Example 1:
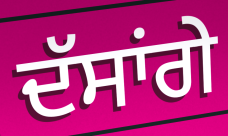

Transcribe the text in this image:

ਦੱਸਾਂਗੇ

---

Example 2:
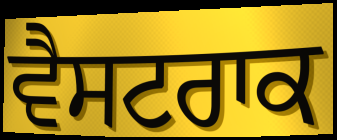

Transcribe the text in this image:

ਵੈਸਟਰਾਕ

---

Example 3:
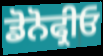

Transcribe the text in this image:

ਡੋਨੋਫ੍ਰੀਓ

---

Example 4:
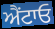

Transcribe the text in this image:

ਐਂਟਾਓ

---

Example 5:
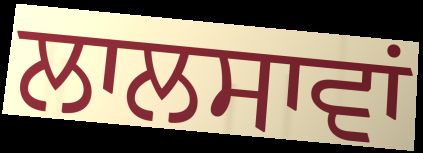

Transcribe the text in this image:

ਲਾਲਸਾਵਾਂ